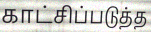
காட்சிப்படுத்த